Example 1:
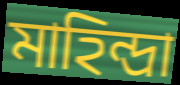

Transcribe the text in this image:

মাহিন্দ্রা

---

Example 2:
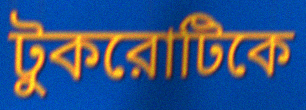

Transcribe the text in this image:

টুকরোটিকে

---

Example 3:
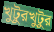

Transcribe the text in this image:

খুটুরখুটুর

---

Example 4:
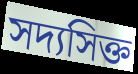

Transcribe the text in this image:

সদ্যসিক্ত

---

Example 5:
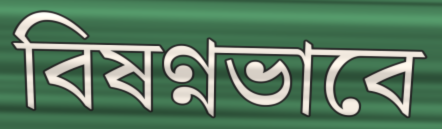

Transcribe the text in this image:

বিষণ্নভাবে